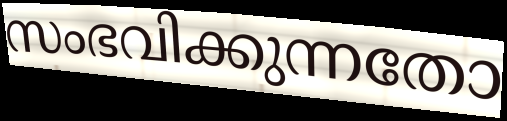
സംഭവിക്കുന്നതോ